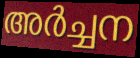
അർച്ചന